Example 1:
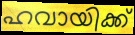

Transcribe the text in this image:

ഹവായിക്ക്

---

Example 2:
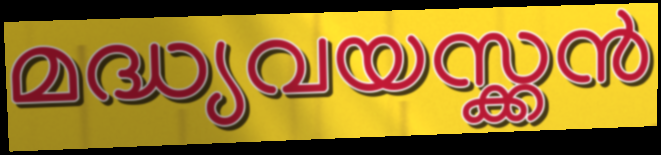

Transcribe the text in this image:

മദ്ധ്യവയസ്ക്കൻ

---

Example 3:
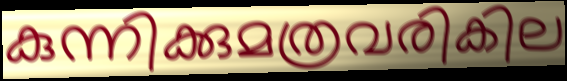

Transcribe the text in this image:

കുന്നിക്കുമത്രവരികില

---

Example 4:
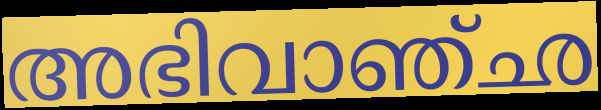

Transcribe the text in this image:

അഭിവാഞ്ഛ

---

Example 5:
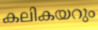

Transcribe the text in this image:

കലികയറും